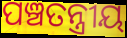
ପଞ୍ଚତନ୍ତ୍ରୀୟ